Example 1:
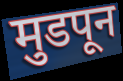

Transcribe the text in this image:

मुडपून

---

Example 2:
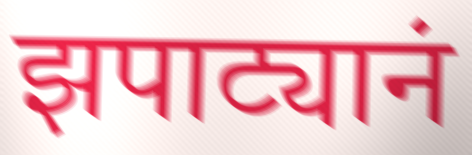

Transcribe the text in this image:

झपाट्यानं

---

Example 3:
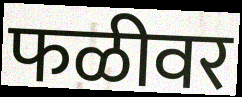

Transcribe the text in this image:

फळीवर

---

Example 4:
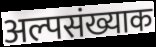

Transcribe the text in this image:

अल्पसंख्याक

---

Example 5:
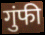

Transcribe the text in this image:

गुंफी